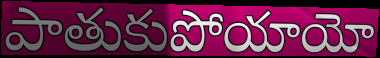
పాతుకుపోయాయో